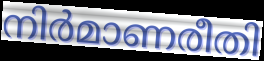
നിർമാണരീതി